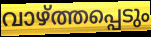
വാഴ്ത്തപ്പെടും